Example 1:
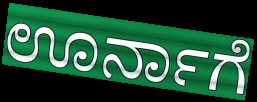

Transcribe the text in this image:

ಊರ್ನಾಗೆ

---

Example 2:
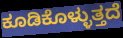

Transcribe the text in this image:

ಕೂಡಿಕೊಳ್ಳುತ್ತದೆ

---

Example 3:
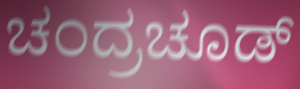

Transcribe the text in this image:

ಚಂದ್ರಚೂಡ್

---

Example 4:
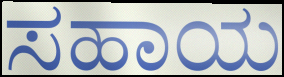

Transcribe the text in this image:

ಸಹಾಯ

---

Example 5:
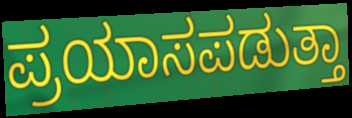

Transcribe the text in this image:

ಪ್ರಯಾಸಪಡುತ್ತಾ